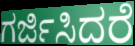
ಗರ್ಜಿಸಿದರೆ